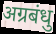
अग्रबंधु